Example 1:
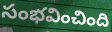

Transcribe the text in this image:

సంభవించింది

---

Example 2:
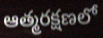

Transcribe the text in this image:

ఆత్మరక్షణలో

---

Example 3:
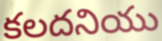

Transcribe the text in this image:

కలదనియు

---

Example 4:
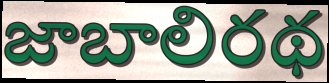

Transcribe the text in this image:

జాబాలిరథ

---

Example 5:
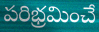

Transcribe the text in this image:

పరిభ్రమించే